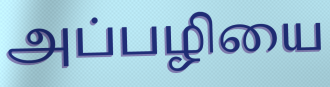
அப்பழியை